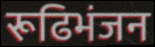
रूढिभंजन